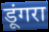
डूंगरा